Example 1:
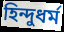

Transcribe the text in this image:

হিন্দুধর্ম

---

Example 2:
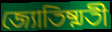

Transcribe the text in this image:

জ্যোতিষ্মতী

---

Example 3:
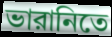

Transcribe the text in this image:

ভারানিতে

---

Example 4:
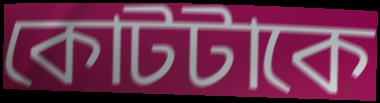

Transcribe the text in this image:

কোটটাকে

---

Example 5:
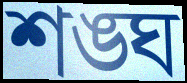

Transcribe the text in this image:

শঙ্ঘ